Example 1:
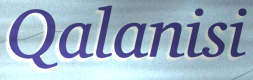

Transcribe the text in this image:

Qalanisi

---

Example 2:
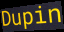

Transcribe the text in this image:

Dupin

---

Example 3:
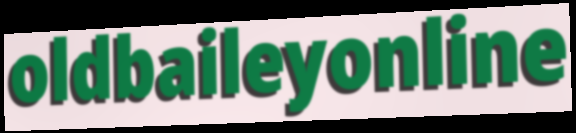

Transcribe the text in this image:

oldbaileyonline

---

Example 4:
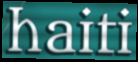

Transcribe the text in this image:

haiti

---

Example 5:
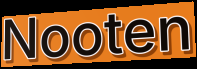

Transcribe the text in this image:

Nooten